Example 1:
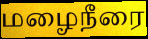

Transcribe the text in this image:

மழைநீரை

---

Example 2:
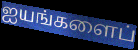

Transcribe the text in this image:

ஐயங்களைப்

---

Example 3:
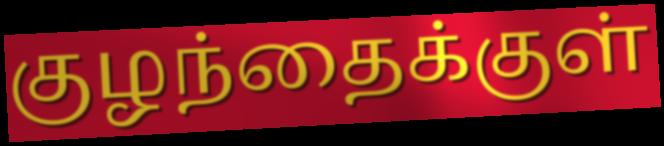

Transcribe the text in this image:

குழந்தைக்குள்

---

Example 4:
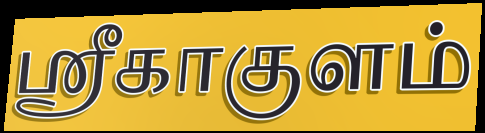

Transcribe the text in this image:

ஸ்ரீகாகுளம்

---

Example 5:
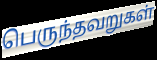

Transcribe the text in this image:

பெருந்தவறுகள்